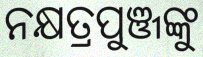
ନକ୍ଷତ୍ରପୁଞ୍ଜଙ୍କୁ